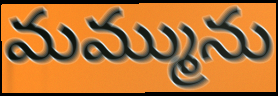
మమ్మును